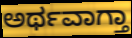
ಅರ್ಥವಾಗ್ತಾ